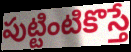
పుట్టింటికొస్తే